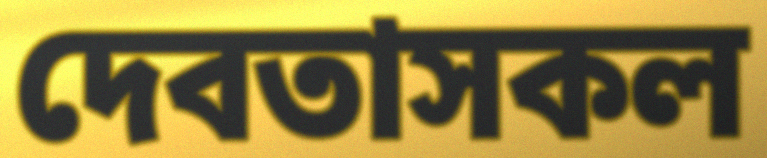
দেবতাসকল